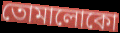
তোমালোকো